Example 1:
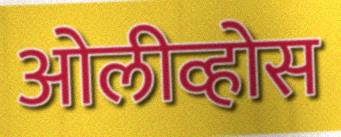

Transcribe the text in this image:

ओलीव्होस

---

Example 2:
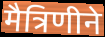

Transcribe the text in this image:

मैत्रिणीने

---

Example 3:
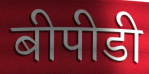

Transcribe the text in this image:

बीपीडी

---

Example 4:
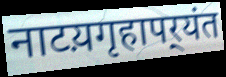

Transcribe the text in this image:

नाटय़गृहापर्यंत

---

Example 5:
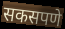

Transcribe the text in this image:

सकसपणे